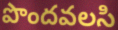
పొందవలసి